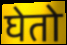
घेतो